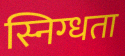
स्निग्धता